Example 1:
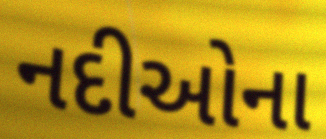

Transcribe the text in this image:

નદીઓના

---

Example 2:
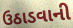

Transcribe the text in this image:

ઉઠાડવાની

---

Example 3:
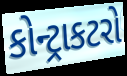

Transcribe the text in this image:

કોન્ટ્રાકટરો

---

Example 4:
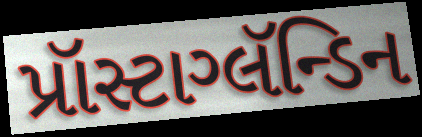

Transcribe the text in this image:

પ્રૉસ્ટાગ્લૅન્ડિન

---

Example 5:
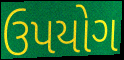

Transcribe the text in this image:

ઉપયોગ